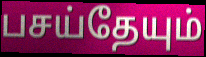
பசய்தேயும்